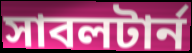
সাবলটার্ন